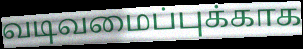
வடிவமைப்புக்காக